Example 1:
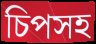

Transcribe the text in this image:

চিপসহ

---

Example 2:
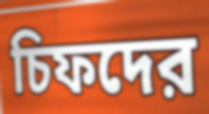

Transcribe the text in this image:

চিফদের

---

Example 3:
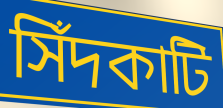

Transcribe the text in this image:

সিঁদকাটি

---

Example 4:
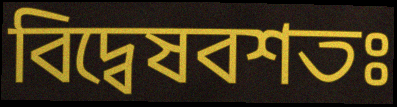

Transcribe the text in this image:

বিদ্বেষবশতঃ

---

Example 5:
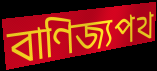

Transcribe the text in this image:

বাণিজ্যপথ